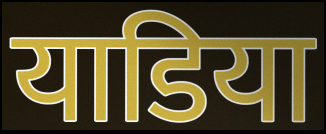
याडिया